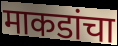
माकडांचा